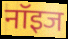
नॉइज